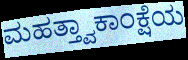
ಮಹತ್ತ್ವಾಕಾಂಕ್ಷೆಯ